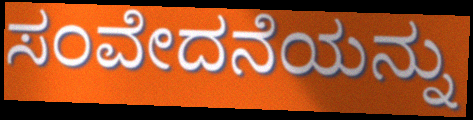
ಸಂವೇದನೆಯನ್ನು